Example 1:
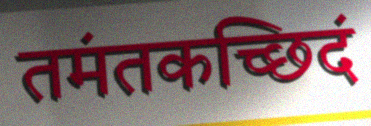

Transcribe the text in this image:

तमंतकच्छिदं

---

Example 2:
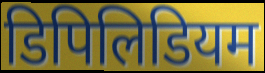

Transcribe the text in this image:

डिपिलिडियम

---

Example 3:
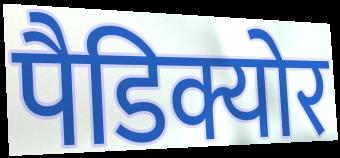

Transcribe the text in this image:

पैडिक्योर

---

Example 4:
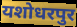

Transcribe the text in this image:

यशोधरपुर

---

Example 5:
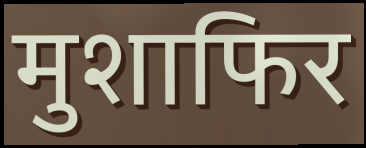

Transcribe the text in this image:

मुशाफिर